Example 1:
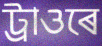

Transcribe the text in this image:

ট্ৰাওৰে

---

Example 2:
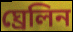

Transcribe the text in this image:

ঘ্ৰেলিন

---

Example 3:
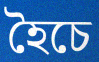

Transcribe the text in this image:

হৈচে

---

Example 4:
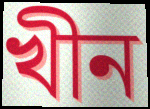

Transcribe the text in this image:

খীন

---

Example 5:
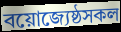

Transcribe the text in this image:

বয়োজ্যেষ্ঠসকল